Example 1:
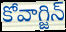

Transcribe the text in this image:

కోవాగ్జిన్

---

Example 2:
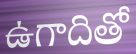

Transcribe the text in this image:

ఉగాదితో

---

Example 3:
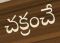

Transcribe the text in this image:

చక్రంచే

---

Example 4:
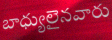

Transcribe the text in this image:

బాధ్యులైనవారు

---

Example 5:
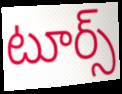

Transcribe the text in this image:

టూర్స్